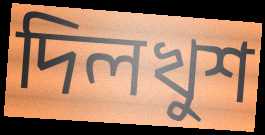
দিলখুশ